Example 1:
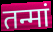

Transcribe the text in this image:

तन्मां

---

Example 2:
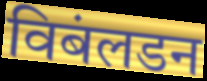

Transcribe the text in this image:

विबंलडन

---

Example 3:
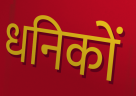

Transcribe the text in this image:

धनिकों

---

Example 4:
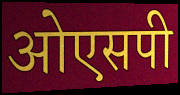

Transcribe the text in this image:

ओएसपी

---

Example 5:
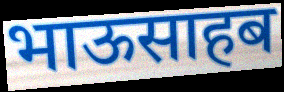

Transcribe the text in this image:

भाऊसाहब